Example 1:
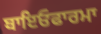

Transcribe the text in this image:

ਬਾਇਓਫਾਰਮਾ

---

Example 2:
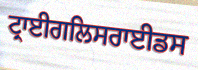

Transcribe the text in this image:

ਟ੍ਰਾਈਗਲਿਸਰਾਈਡਸ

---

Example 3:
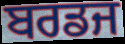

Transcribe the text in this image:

ਬਰਡਜ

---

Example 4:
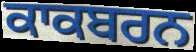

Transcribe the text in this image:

ਕਾਕਬਰਨ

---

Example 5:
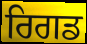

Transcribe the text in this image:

ਰਿਗਡ